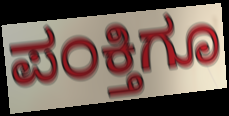
ಪಂಕ್ತಿಗೂ